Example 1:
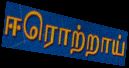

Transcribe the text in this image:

ஈரொற்றாய்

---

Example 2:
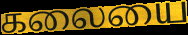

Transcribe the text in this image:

கலையை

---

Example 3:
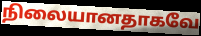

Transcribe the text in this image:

நிலையானதாகவே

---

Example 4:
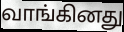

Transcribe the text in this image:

வாங்கினது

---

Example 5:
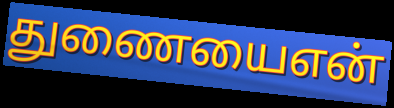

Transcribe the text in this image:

துணையைஎன்